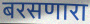
बरसणारा